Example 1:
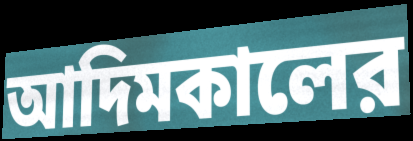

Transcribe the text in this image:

আদিমকালের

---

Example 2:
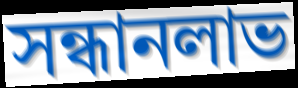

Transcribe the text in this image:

সন্ধানলাভ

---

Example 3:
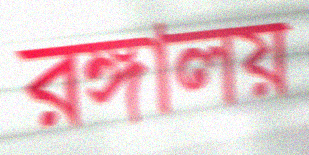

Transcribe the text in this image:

রঙ্গালয়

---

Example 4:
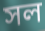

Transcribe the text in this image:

সল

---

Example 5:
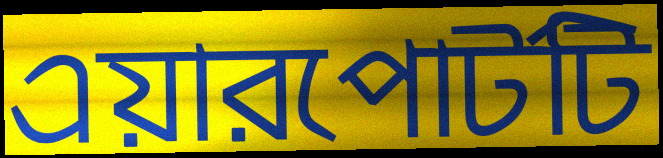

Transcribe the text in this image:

এয়ারপোর্টটি